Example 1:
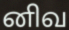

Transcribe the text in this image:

னிவ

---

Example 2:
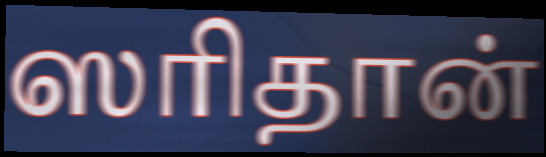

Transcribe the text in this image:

ஸரிதான்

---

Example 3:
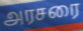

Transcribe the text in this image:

அரசரை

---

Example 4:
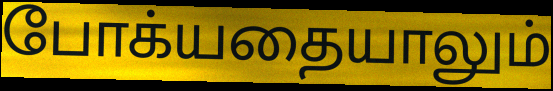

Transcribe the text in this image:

போக்யதையாலும்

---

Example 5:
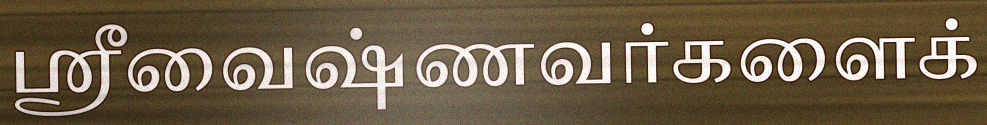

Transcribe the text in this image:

ஸ்ரீவைஷ்ணவர்களைக்